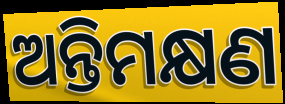
ଅନ୍ତିମକ୍ଷଣ